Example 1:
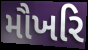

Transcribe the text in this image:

મૌખરિ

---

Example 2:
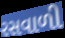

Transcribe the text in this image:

રસવાળી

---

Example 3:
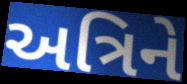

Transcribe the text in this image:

અત્રિને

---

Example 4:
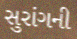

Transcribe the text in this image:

સુરાંગની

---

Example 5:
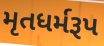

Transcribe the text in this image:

મૃતધર્મરૂપ